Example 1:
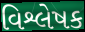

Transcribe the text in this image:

વિશ્લેષક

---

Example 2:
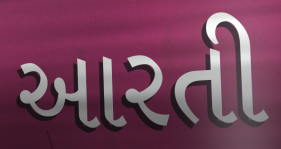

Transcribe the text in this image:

આરતી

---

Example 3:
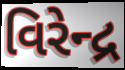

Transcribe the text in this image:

વિરેન્દ્ર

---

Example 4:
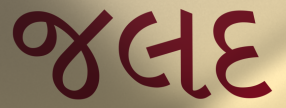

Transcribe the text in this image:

જલદ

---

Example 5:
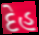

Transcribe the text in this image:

દેહ